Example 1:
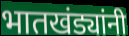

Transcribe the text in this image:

भातखंड्यांनी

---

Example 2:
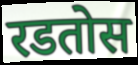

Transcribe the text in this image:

रडतोस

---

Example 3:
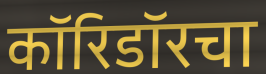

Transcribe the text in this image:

कॉरिडॉरचा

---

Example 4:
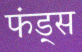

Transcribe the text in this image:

फंड्‌स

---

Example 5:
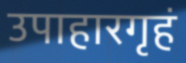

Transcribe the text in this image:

उपाहारगृहं